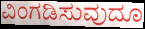
ವಿಂಗಡಿಸುವುದೂ